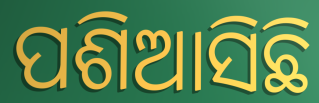
ପଶିଆସିଛି